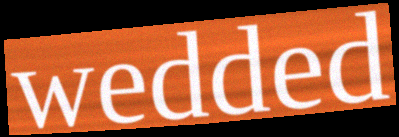
wedded